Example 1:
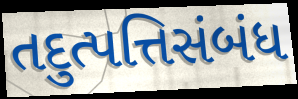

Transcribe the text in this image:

તદુત્પત્તિસંબંધ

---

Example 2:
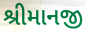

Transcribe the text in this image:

શ્રીમાનજી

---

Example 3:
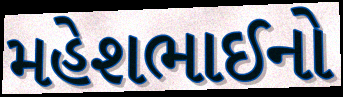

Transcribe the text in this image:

મહેશભાઈનો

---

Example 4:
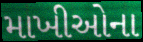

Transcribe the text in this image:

માખીઓના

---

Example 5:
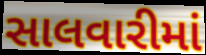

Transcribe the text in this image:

સાલવારીમાં